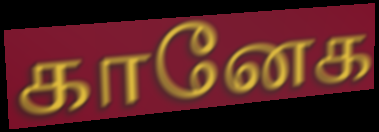
கானேக